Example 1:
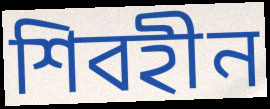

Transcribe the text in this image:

শিবহীন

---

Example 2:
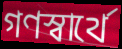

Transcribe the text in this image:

গণস্বার্থে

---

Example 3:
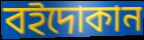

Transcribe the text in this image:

বইদোকান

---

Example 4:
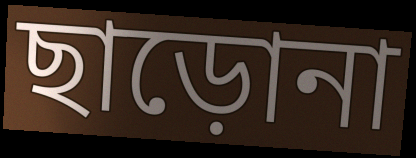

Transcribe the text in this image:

ছাড়োনা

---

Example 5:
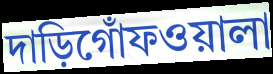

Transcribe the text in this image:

দাড়িগোঁফওয়ালা